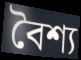
বৈশ্য